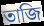
তাজি